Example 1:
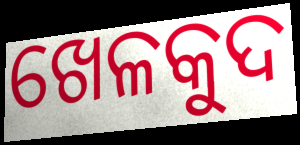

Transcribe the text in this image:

ଖେଳକୁଦ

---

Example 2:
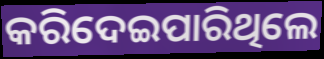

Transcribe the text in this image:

କରିଦେଇପାରିଥିଲେ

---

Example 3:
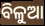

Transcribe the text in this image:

ବିଳୁଆ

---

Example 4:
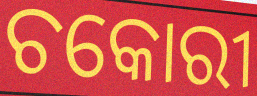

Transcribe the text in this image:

ଚକୋରୀ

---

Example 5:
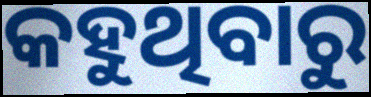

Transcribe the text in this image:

କହୁଥିବାରୁ